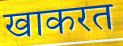
खाकरत